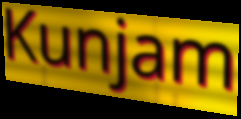
Kunjam